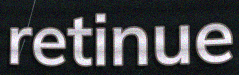
retinue